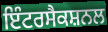
ਇੰਟਰਸੈਕਸ਼ਨਲ